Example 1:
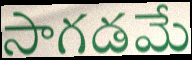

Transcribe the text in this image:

సాగడమే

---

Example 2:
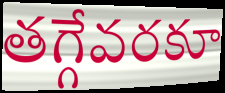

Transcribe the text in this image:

తగ్గేవరకూ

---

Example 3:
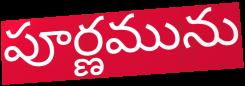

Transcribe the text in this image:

పూర్ణమును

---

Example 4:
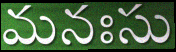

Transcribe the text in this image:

మనఃసు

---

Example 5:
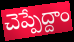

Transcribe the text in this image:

చెప్పేద్దాం